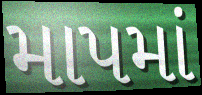
માપમાં